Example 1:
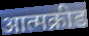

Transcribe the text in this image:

आत्मक्रीड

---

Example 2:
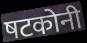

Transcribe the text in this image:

षटकोनी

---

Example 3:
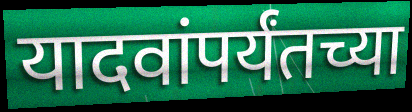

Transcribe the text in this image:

यादवांपर्यंतच्या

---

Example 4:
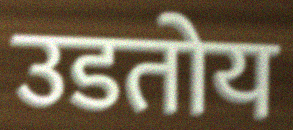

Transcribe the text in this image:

उडतोय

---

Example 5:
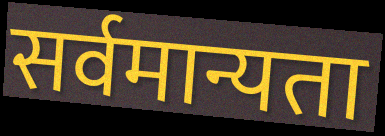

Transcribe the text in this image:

सर्वमान्यता